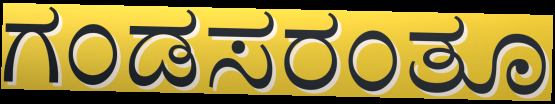
ಗಂಡಸರಂತೂ